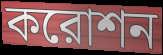
করোশন